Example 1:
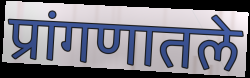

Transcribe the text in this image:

प्रांगणातले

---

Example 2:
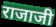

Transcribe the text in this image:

राजाजी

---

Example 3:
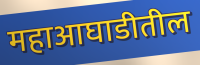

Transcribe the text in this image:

महाआघाडीतील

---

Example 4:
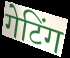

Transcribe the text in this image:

गेटिंग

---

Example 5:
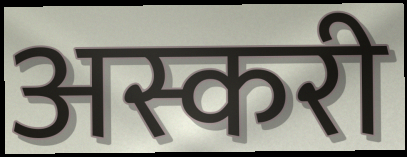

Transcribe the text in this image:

अस्करी